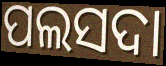
ପଲସଦା